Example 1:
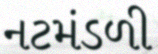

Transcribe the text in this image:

નટમંડળી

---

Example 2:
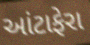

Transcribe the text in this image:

આંટાફેરા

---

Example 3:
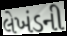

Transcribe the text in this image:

લેખંડની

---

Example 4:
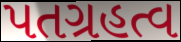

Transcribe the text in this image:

પતગ્રહત્વ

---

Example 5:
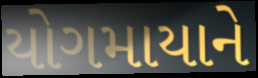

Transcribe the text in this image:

યોગમાયાને